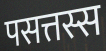
पसत्तस्स